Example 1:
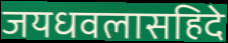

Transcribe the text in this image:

जयधवलासहिदे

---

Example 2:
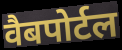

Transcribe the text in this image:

वैबपोर्टल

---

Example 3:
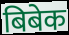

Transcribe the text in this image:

बिबेक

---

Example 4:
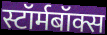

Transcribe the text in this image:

स्टॉर्मबॉक्स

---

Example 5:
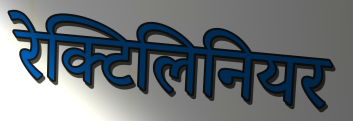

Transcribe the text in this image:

रेक्टिलिनियर